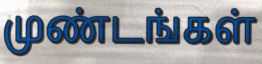
முண்டங்கள்